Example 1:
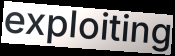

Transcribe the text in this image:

exploiting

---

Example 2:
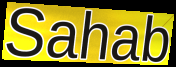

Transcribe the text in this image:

Sahab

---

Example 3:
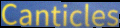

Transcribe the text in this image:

Canticles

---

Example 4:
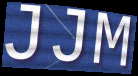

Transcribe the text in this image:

JJM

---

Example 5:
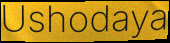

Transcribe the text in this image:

Ushodaya